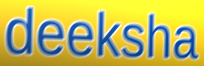
deeksha